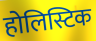
होलिस्टिक